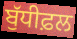
ਬੁੱਧੀਫ਼ਲ